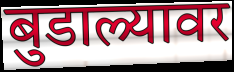
बुडाल्यावर